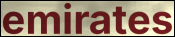
emirates